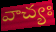
వాచ్యః